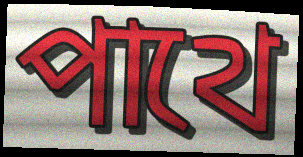
পাথে